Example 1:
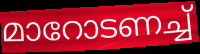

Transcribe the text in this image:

മാറോടണച്ച്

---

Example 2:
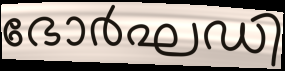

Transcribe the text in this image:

ഭോർഘഡി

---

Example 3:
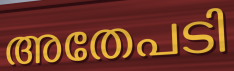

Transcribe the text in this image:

അതേപടി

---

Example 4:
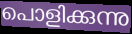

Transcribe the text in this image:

പൊളിക്കുന്നു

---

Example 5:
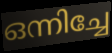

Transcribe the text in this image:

ഒന്നിച്ചേ